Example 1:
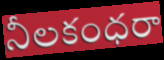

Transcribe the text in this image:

నీలకంధరా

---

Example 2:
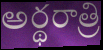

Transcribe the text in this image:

అర్థరాత్రి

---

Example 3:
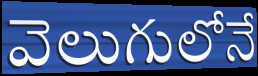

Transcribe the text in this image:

వెలుగులోనే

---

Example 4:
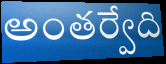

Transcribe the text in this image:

అంతర్వేది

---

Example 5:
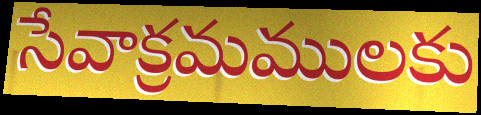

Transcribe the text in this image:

సేవాక్రమములకు